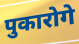
पुकारोगे